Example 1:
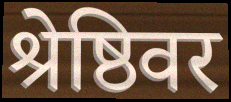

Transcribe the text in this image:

श्रेष्ठिवर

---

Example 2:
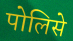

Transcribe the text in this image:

पोलिसे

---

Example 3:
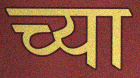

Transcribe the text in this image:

च्या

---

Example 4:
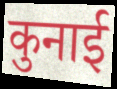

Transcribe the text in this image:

कुनाई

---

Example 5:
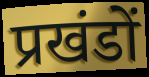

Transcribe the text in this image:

प्रखंडों